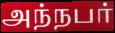
அந்நபர்